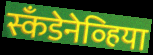
स्कॅंडेनेव्हिया